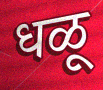
धळू